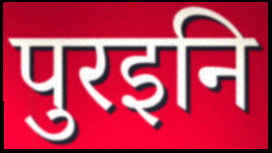
पुरइनि